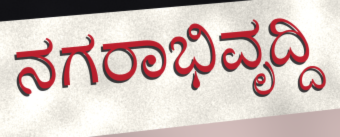
ನಗರಾಭಿವೃದ್ದಿ